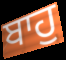
ਬਾਹੁ